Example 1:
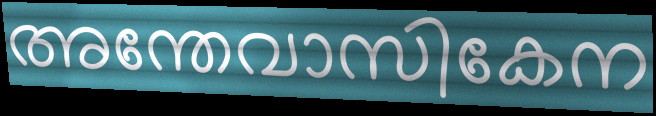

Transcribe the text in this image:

അന്തേവാസികേന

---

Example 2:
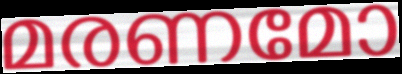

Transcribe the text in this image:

മരണമോ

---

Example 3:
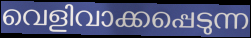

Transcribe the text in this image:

വെളിവാക്കപ്പെടുന്ന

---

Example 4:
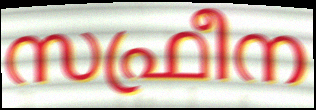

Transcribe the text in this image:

സഫ്രീന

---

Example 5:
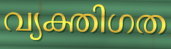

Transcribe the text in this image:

വ്യക്തിഗത